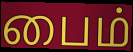
பைம்